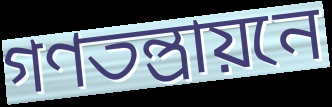
গণতন্ত্রায়নে